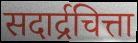
सदार्द्रचित्ता